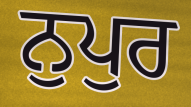
ਨੁਪੁਰ